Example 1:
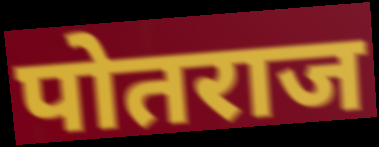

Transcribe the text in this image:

पोतराज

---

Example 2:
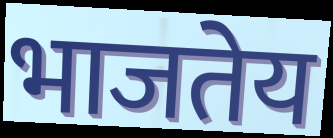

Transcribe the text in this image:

भाजतेय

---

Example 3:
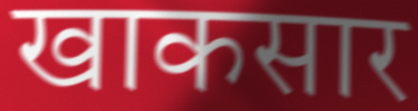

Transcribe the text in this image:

खाकसार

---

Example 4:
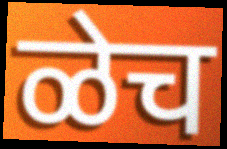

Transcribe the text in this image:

ळेच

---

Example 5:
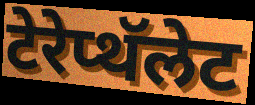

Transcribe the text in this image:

टेरेप्थॅलेट